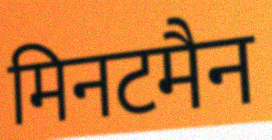
मिनटमैन